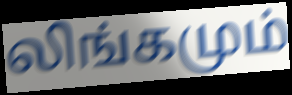
லிங்கமும்